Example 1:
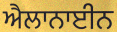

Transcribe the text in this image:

ਐਲਾਨਾਈਨ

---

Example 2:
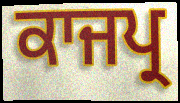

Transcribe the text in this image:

ਕਾਜਪ੍ਰ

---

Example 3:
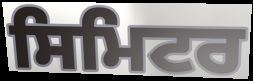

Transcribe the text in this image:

ਸਿਮਿਟਰ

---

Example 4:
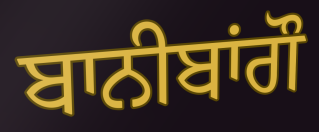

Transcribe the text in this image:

ਬਾਨੀਬਾਂਗੌ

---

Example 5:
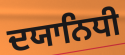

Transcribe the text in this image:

ਦਯਾਨਿਧੀ